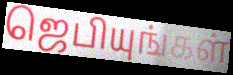
ஜெபியுங்கள்